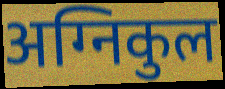
अग्निकुल